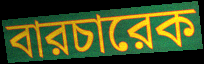
বারচারেক